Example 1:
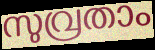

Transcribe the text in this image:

സുവ്രതാം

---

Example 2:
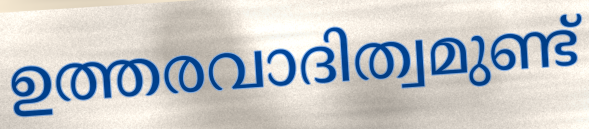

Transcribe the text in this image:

ഉത്തരവാദിത്വമുണ്ട്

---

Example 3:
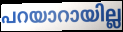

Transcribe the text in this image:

പറയാറായില്ല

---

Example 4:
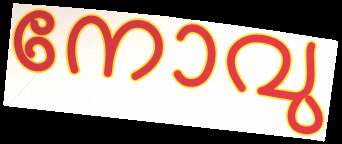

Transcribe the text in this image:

നോവു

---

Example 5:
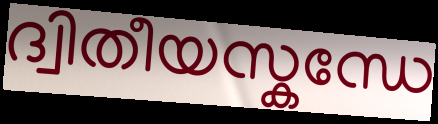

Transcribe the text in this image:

ദ്വിതീയസ്കന്ധേ